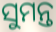
ସୁମନ୍ତ